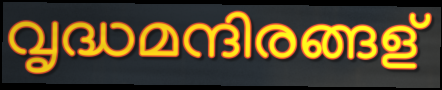
വൃദ്ധമന്ദിരങ്ങള്